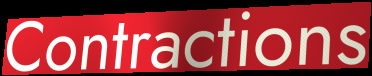
Contractions